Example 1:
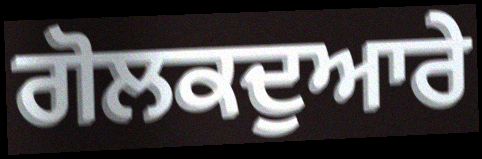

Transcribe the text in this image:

ਗੋਲਕਦੁਆਰੇ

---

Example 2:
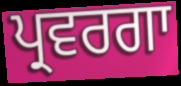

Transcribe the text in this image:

ਪ੍ਰਵਰਗਾ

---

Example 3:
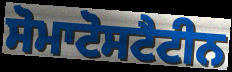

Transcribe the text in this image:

ਸੋਮਾਟੋਸਟੈਟੀਨ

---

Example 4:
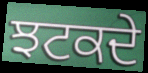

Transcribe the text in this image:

ਝਟਕਦੇ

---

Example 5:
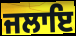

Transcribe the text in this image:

ਜਲਾਇ